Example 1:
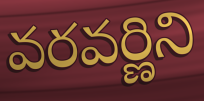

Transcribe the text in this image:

వరవర్ణిని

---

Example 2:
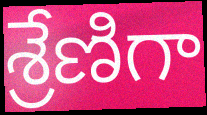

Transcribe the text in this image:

శ్రేణిగా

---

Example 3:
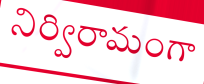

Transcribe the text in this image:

నిర్విరామంగా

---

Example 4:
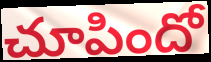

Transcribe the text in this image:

చూపిందో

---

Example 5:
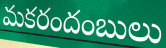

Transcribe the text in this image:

మకరందంబులు